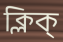
ক্লিক্